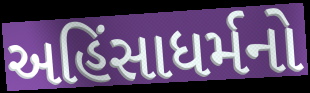
અહિંસાધર્મનો